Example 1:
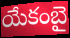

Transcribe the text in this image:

యేకంబై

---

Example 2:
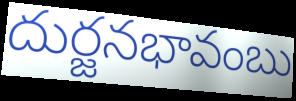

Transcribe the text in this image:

దుర్జనభావంబు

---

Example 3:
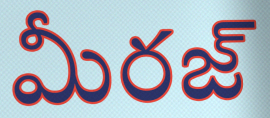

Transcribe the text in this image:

మీరజ్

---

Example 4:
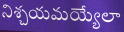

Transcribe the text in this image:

నిశ్చయమయ్యేలా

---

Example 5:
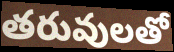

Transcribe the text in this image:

తరువులతో